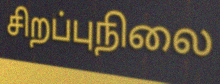
சிறப்புநிலை